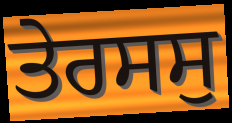
ਤੇਰਸਸੁ